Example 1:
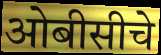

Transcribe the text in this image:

ओबीसीचे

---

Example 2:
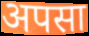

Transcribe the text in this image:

अपसा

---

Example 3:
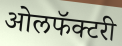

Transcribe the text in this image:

ओलफॅक्टरी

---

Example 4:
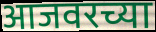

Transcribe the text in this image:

आजवरच्या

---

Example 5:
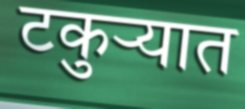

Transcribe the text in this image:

टकुऱ्यात